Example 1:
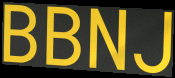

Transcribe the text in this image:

BBNJ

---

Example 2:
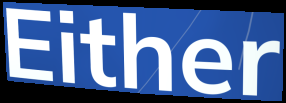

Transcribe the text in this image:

Either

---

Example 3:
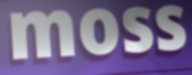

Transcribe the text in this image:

moss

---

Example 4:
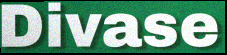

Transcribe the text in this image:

Divase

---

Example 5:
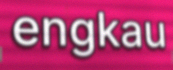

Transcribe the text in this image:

engkau